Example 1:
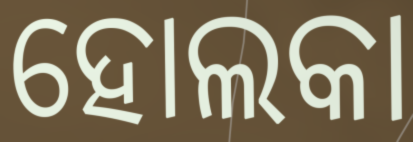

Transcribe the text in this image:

ହୋଲକା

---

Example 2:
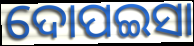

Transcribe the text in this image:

ଦୋପଇସା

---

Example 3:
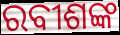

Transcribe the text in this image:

ରବୀଶଙ୍କ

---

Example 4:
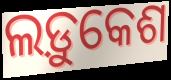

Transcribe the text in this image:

ଲଡ଼ୁକେଶ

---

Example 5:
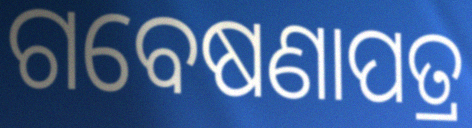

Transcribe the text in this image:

ଗବେଷଣାପତ୍ର